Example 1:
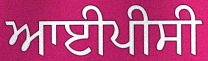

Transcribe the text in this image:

ਆਈਪੀਸੀ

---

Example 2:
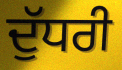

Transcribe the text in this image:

ਦੁੱਧਰੀ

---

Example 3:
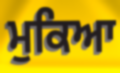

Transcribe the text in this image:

ਮੁਕਿਆ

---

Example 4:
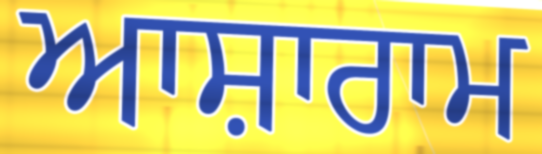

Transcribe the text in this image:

ਆਸ਼ਾਰਾਮ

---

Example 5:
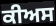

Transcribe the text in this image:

ਕੀਅਸ